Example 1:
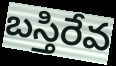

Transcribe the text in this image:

బస్తిరేవ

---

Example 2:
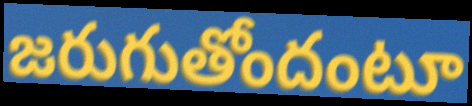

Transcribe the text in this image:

జరుగుతోందంటూ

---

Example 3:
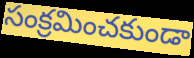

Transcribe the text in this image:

సంక్రమించకుండా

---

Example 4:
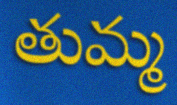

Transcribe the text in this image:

తుమ్మ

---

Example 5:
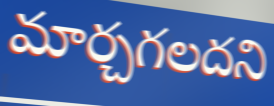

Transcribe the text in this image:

మార్చగలదని